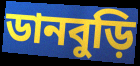
ডানবুড়ি